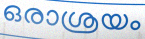
ഒരാശ്രയം